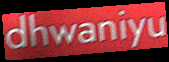
dhwaniyu